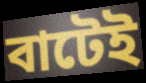
বাটেই